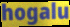
hogalu